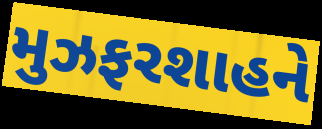
મુઝફરશાહને